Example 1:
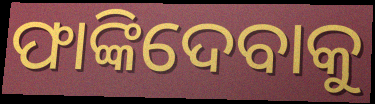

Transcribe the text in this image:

ଫାଙ୍କିଦେବାକୁ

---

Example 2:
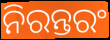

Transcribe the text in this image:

ନିରନ୍ତରଂ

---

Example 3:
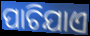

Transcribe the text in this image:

ପାଚିଯାଏ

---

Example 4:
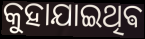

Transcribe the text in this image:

କୁହାଯାଇଥିଵ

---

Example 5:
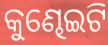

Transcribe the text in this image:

କୁଣ୍ଢେଇଟି